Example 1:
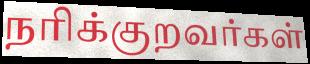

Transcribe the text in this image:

நரிக்குறவர்கள்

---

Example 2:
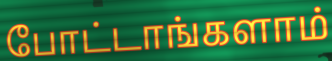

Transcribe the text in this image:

போட்டாங்களாம்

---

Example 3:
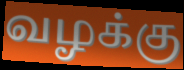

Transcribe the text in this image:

வழக்கு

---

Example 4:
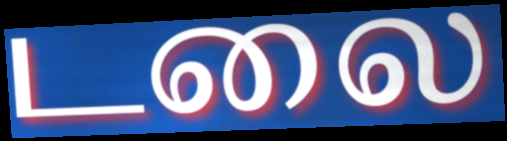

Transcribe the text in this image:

டலை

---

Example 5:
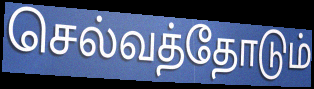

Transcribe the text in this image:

செல்வத்தோடும்